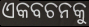
ଏକବଚନକୁ